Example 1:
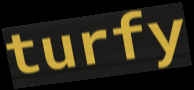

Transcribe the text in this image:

turfy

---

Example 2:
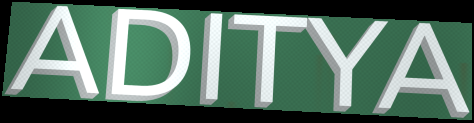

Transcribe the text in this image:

ADITYA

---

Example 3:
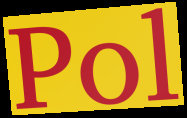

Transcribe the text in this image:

Pol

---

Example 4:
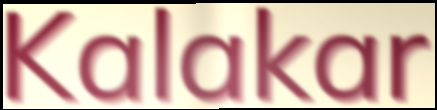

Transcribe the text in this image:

Kalakar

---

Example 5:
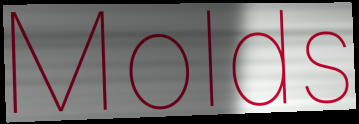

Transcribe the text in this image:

Molds